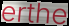
erthe